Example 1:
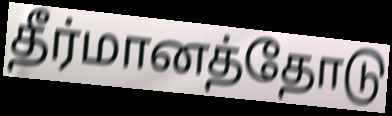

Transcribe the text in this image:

தீர்மானத்தோடு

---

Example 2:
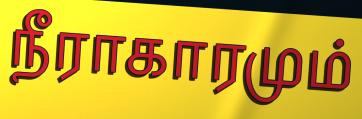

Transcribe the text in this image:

நீராகாரமும்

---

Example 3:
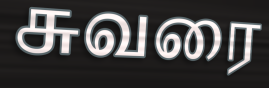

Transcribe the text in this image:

சுவரை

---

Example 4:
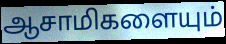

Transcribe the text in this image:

ஆசாமிகளையும்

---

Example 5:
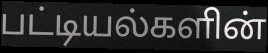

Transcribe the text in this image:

பட்டியல்களின்